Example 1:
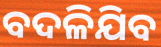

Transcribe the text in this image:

ବଦଳିଯିବ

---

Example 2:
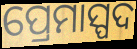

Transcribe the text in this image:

ପ୍ରେମାସ୍ପଦ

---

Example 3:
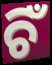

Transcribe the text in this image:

ଚିଁ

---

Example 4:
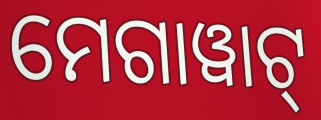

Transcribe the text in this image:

ମେଗାୱାଟ୍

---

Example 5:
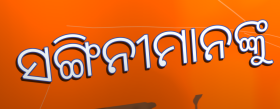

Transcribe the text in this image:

ସଙ୍ଗିନୀମାନଙ୍କୁ